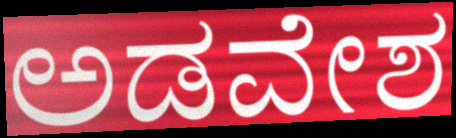
ಅಡವೇಶ